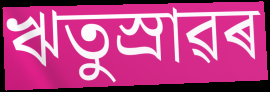
ঋতুস্ৰাৱৰ